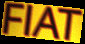
FIAT